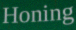
Honing